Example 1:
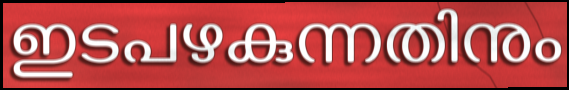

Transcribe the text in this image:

ഇടപഴകുന്നതിനും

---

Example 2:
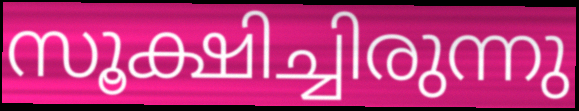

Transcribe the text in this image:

സൂക്ഷിച്ചിരുന്നു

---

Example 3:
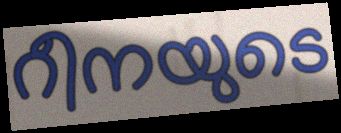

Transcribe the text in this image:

റീനയുടെ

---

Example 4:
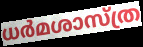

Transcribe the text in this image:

ധർമശാസ്ത്ര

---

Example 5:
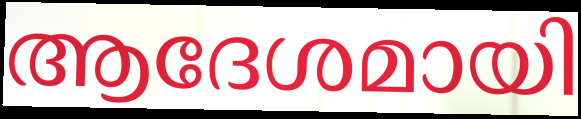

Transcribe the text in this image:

ആദേശമായി